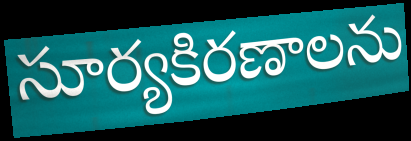
సూర్యకిరణాలను